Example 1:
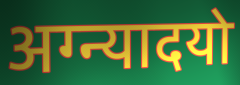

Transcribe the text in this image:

अग्न्यादयो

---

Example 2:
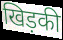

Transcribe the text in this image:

खिड़की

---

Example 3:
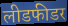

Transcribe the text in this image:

लीडफीडर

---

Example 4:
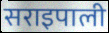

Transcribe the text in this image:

सराइपाली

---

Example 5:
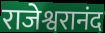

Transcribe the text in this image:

राजेश्वरानंद